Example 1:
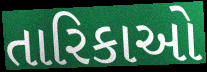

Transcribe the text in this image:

તારિકાઓ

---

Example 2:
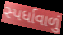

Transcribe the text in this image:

સ્પર્ધાવાળું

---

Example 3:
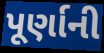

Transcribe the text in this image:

પૂર્ણાની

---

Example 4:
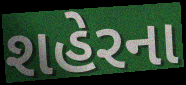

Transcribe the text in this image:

શહેરના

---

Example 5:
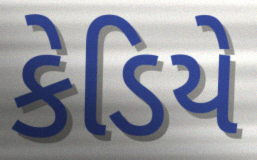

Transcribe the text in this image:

કેડિયે